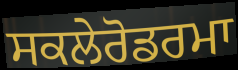
ਸਕਲੇਰੋਡਰਮਾ